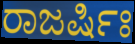
ರಾಜರ್ಷಿಃ